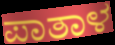
ಪಾತಾಳ